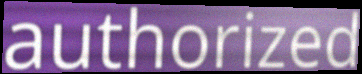
authorized